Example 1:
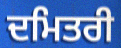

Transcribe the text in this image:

ਦਮਿਤਰੀ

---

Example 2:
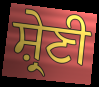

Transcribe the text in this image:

ਸ਼੍ਰੇਣੀ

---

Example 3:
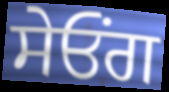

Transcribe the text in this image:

ਸੇਓਂਗ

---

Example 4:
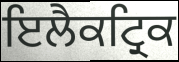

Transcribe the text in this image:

ਇਲੈਕਟ੍ਰਿਕ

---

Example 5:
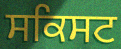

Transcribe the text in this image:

ਸਕਿਸਟ